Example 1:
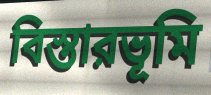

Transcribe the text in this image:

বিস্তারভূমি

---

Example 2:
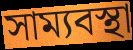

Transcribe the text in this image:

সাম্যবস্থা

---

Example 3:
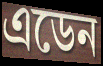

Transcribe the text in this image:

এডেন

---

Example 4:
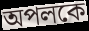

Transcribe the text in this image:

অপলকে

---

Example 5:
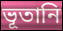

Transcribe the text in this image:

ভূতানি